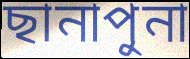
ছানাপুনা